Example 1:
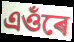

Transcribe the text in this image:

এওঁৰে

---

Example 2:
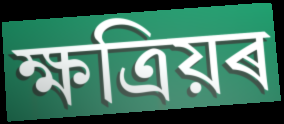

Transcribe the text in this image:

ক্ষত্ৰিয়ৰ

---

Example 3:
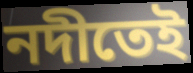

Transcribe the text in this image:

নদীতেই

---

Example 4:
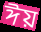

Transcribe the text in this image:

ঈয়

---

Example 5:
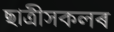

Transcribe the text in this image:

ছাত্ৰীসকলৰ